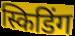
स्किडिंग